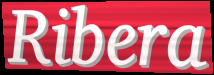
Ribera